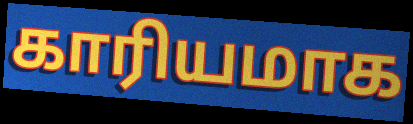
காரியமாக